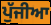
ਪੁੱਜੀਆ